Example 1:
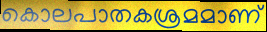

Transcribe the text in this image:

കൊലപാതകശ്രമമാണ്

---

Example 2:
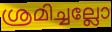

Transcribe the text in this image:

ശ്രമിച്ചല്ലോ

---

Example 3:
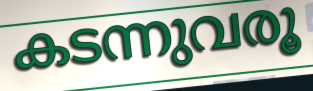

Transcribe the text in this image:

കടന്നുവരൂ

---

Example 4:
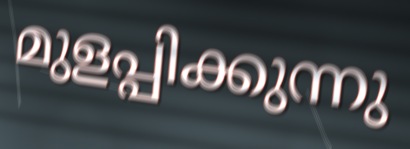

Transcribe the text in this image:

മുളപ്പിക്കുന്നു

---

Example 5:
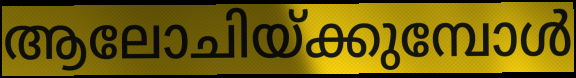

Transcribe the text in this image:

ആലോചിയ്ക്കുമ്പോൾ